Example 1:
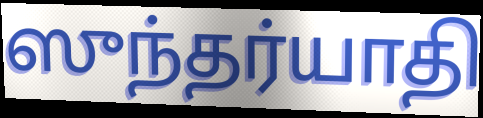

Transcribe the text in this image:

ஸுந்தர்யாதி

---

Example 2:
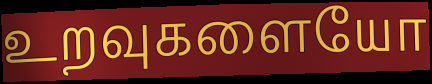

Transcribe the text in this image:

உறவுகளையோ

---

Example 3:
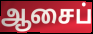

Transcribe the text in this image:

ஆசைப்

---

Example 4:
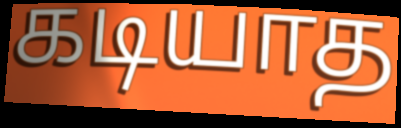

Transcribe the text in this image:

கடியாத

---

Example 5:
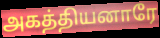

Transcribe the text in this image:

அகத்தியனாரே